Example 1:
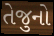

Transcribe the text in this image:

તેજુનો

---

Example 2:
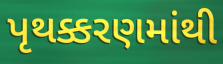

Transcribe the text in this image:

પૃથક્કરણમાંથી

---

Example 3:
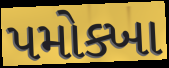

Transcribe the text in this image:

પમોક્ખા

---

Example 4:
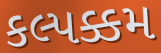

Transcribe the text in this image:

કલ્પક્કમ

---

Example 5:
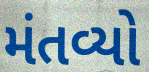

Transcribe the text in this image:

મંતવ્યો